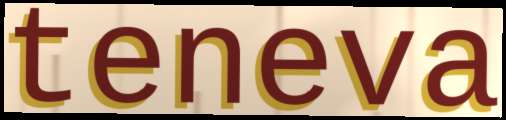
teneva